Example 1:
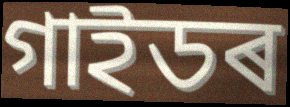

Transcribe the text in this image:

গাইডৰ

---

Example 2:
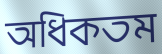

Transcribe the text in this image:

অধিকতম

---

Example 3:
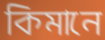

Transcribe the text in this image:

কিমানে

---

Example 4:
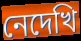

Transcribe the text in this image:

নেদেখি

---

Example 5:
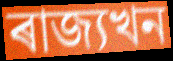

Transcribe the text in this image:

ৰাজ্যখন